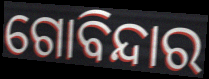
ଗୋବିନ୍ଦାର